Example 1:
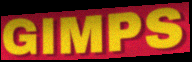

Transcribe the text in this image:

GIMPS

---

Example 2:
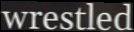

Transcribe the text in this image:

wrestled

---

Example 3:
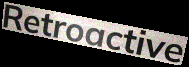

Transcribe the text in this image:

Retroactive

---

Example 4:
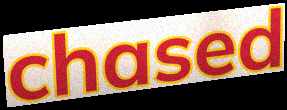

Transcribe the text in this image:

chased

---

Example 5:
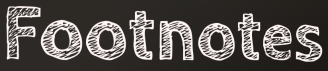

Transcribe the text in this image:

Footnotes